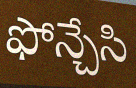
ఫోన్చేసి